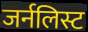
जर्नलिस्ट